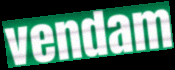
vendam